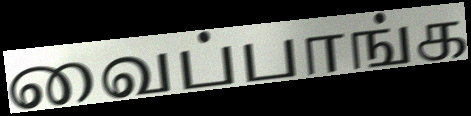
வைப்பாங்க